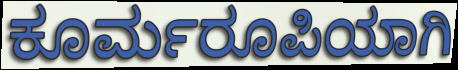
ಕೂರ್ಮರೂಪಿಯಾಗಿ